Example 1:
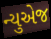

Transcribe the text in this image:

ન્યુએજ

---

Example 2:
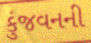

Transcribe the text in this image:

કુંજવનની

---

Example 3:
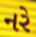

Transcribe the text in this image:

નરે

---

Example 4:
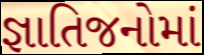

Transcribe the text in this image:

જ્ઞાતિજનોમાં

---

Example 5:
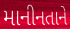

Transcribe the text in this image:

માનીનતાને